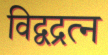
विद्वद्रत्न